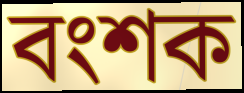
বংশক